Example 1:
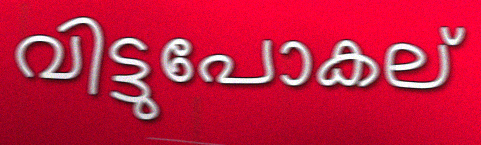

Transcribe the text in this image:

വിട്ടുപോകല്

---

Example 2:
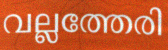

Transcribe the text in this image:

വല്ലത്തേരി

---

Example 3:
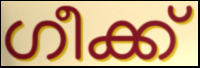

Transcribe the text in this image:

ഗീക്ക്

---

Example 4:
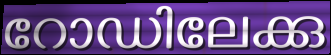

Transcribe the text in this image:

റോഡിലേക്കു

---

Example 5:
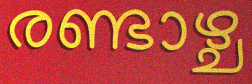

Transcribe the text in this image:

രണ്ടാഴ്ച